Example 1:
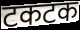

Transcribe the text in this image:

टकटक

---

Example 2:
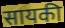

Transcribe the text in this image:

सायकी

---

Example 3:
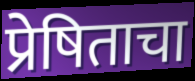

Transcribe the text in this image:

प्रेषिताचा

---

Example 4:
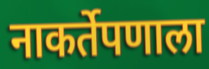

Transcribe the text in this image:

नाकर्तेपणाला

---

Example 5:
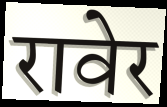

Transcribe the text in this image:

रावेर